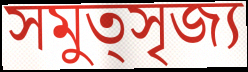
সমুত্সৃজ্য